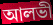
আলভী